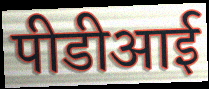
पीडीआई